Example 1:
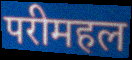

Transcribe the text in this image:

परीमहल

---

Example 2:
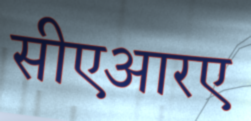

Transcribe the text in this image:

सीएआरए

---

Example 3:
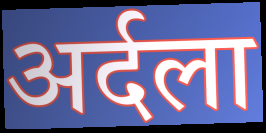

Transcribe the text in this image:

अर्दला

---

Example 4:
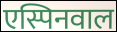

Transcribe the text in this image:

एस्पिनवाल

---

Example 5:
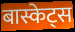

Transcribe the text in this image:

बास्केट्स